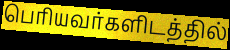
பெரியவர்களிடத்தில்